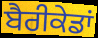
ਬੈਰੀਕੇਡਾਂ